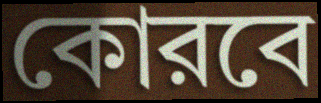
কোরবে